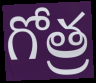
గోత్ర